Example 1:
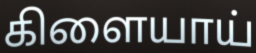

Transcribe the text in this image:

கிளையாய்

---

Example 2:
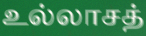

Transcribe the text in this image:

உல்லாசத்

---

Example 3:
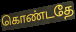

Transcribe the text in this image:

கொண்டதே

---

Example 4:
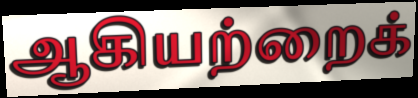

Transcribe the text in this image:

ஆகியற்றைக்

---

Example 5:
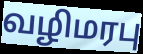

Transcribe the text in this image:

வழிமரபு